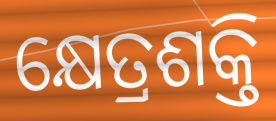
କ୍ଷେତ୍ରଶକ୍ତି